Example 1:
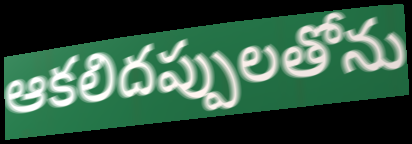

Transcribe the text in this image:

ఆకలిదప్పులతోను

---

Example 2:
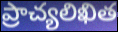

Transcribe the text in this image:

ప్రాచ్యలిఖిత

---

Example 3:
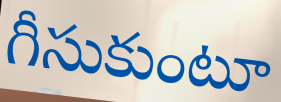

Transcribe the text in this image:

గీసుకుంటూ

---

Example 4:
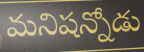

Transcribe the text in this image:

మనిషన్నోడు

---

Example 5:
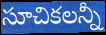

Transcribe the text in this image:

సూచికలన్నీ